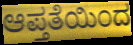
ಆಪ್ತತೆಯಿಂದ